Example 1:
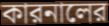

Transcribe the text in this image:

কারনালের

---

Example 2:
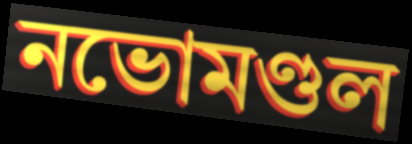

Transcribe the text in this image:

নভোমণ্ডল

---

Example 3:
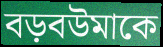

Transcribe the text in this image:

বড়বউমাকে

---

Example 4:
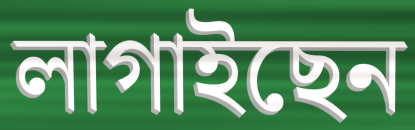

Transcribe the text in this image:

লাগাইছেন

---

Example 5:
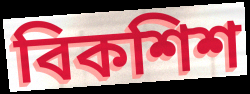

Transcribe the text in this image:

বিকশিশ